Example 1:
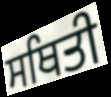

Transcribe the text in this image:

ਸਥਿਤੀ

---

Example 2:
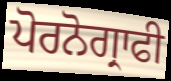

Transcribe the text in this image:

ਪੋਰਨੋਗ੍ਰਾਫੀ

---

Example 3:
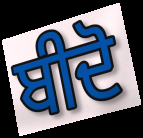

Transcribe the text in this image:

ਬੀਦੋ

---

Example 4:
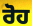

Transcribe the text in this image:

ਰੋਹ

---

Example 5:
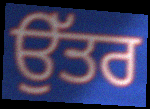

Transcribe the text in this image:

ਉੱਤਰ